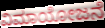
ವಿಮಾಯೋಜನೆ